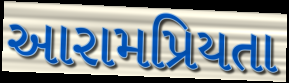
આરામપ્રિયતા